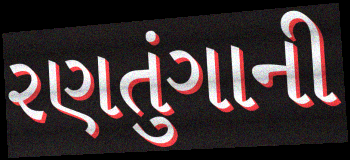
રણતુંગાની